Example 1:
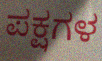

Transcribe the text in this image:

ಪಕ್ಷಗಳ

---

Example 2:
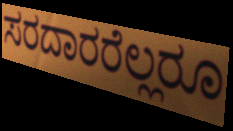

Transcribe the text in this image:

ಸರದಾರರೆಲ್ಲರೂ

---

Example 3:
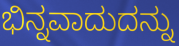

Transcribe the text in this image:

ಭಿನ್ನವಾದುದನ್ನು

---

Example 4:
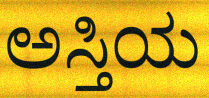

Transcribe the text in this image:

ಅಸ್ತಿಯ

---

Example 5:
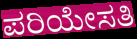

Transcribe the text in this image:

ಪರಿಯೇಸತಿ